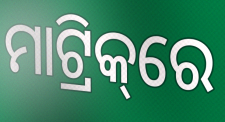
ମାଟ୍ରିକ୍‌ରେ